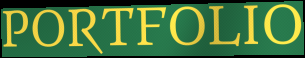
PORTFOLIO